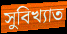
সুবিখ্যাত